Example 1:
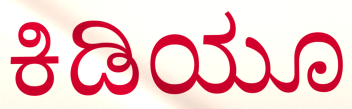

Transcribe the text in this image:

ಕಿಡಿಯೂ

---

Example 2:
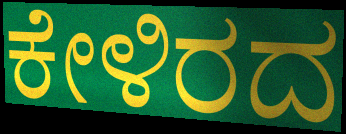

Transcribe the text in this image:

ಕೇಳಿರದ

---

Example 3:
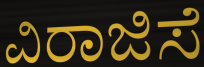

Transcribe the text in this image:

ವಿರಾಜಿಸೆ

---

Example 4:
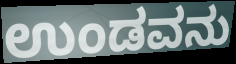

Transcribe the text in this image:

ಉಂಡವನು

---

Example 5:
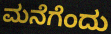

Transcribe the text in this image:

ಮನೆಗೆಂದು